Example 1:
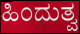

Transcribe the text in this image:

ಹಿಂದುತ್ವ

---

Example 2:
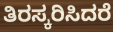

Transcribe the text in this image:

ತಿರಸ್ಕರಿಸಿದರೆ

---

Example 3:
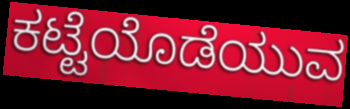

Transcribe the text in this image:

ಕಟ್ಟೆಯೊಡೆಯುವ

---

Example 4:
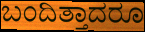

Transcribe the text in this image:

ಬಂದಿತ್ತಾದರೂ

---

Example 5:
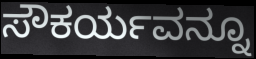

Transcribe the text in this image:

ಸೌಕರ್ಯವನ್ನೂ